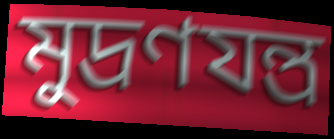
মুদ্ৰণযন্ত্ৰ